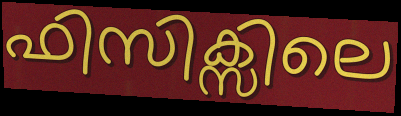
ഫിസിക്സിലെ